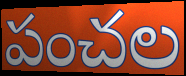
పంచల